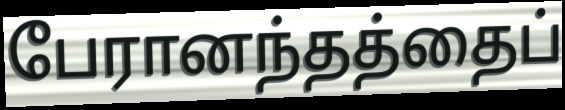
பேரானந்தத்தைப்